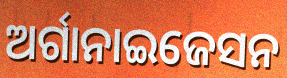
ଅର୍ଗାନାଇଜେସନ